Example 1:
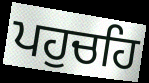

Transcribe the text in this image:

ਪਹੁਚਹਿ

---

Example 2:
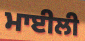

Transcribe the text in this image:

ਮਾਈਲੀ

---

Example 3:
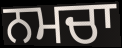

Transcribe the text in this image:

ਨਮਚਾ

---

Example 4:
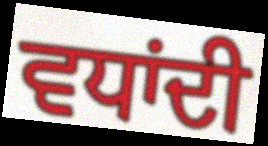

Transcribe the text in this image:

ਵਧਾਂਦੀ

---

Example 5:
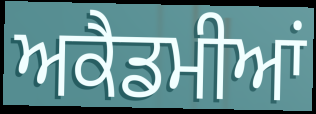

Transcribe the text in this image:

ਅਕੈਡਮੀਆਂ